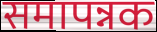
समापन्नक